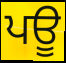
ਪਊ